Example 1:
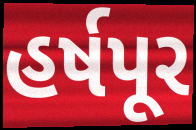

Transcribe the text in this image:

હર્ષપૂર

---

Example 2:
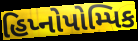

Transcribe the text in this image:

હિપ્નોપોમ્પિક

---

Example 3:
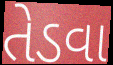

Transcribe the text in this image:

તેડવા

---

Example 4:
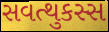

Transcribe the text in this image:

સવત્થુકસ્સ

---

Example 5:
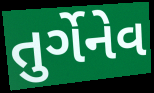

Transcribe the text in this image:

તુર્ગેનેવ